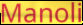
Manoli